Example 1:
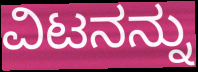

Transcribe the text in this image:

ವಿಟನನ್ನು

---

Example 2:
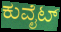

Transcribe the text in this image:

ಕುವೈಟ್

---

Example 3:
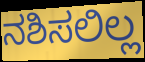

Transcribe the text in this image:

ನಶಿಸಲಿಲ್ಲ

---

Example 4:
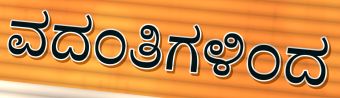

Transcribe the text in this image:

ವದಂತಿಗಳಿಂದ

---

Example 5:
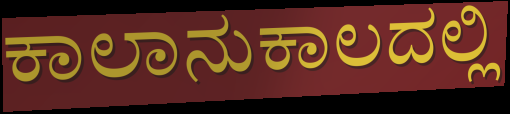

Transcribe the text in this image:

ಕಾಲಾನುಕಾಲದಲ್ಲಿ